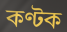
কণ্টক